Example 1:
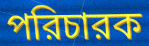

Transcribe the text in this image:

পরিচারক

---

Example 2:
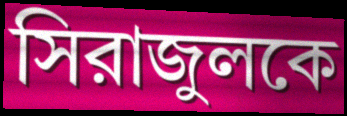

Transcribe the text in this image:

সিরাজুলকে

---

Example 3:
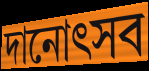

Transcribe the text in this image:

দানোৎসব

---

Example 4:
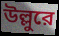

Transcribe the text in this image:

উল্লুরে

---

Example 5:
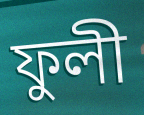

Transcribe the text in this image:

ফুলী